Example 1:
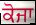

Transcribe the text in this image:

ਕੋਜਾ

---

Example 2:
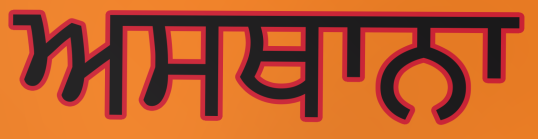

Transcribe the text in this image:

ਅਸਥਾਨਾ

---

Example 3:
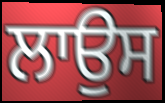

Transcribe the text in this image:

ਲਾਉਸ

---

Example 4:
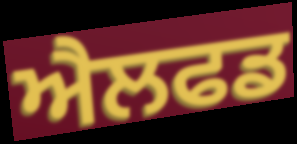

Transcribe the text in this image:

ਐਲਫਡ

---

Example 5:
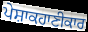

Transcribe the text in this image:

ਪੇਸ਼ਾਕਹਾਣੀਕਾਰ